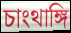
চাংথাঙ্গি